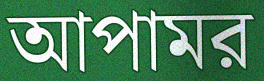
আপামর